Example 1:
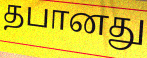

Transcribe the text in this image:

தபானது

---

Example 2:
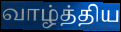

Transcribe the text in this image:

வாழ்த்திய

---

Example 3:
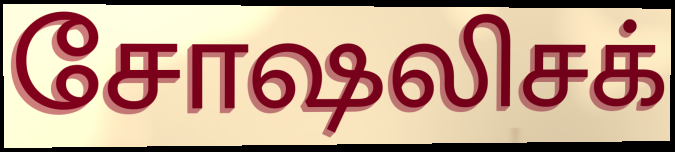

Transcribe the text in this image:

சோஷலிசக்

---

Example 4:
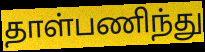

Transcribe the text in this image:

தாள்பணிந்து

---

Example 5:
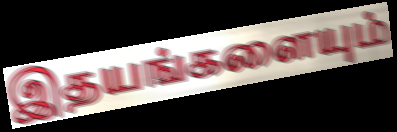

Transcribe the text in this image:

இதயங்களையும்